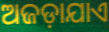
ଅଜଡ଼ାଯାଏ